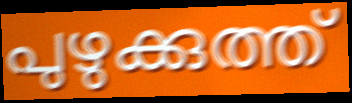
പുഴുക്കുത്ത്